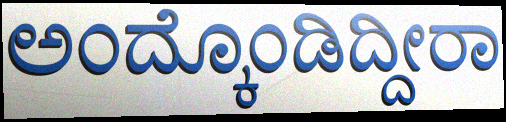
ಅಂದ್ಕೊಂಡಿದ್ದೀರಾ